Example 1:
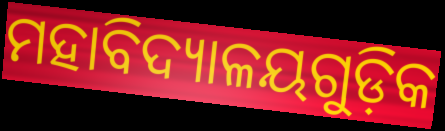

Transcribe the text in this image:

ମହାବିଦ୍ୟାଳୟଗୁଡ଼ିକ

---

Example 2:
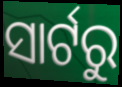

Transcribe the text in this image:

ସାର୍ଟରୁ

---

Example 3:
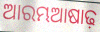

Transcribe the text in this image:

ଆରମ୍ଭଆଷାଢ଼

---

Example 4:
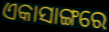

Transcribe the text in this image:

ଏକାସାଙ୍ଗରେ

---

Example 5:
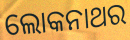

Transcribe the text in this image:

ଲୋକନାଥର